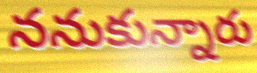
ననుకున్నారు